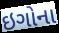
ઇગોના